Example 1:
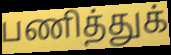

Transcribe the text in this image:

பணித்துக்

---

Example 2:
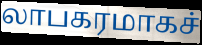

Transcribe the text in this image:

லாபகரமாகச்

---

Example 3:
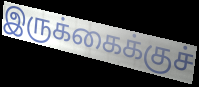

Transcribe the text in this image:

இருக்கைக்குச்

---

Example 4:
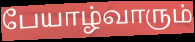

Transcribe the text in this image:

பேயாழ்வாரும்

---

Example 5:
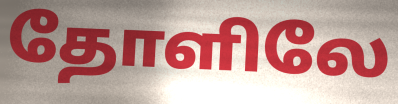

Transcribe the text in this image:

தோளிலே